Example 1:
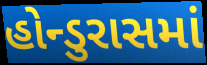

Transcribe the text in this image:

હોન્ડુરાસમાં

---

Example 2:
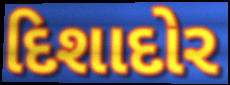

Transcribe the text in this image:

દિશાદોર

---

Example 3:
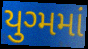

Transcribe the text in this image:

યુગ્મમાં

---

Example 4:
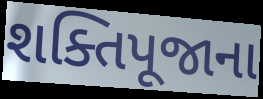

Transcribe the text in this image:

શક્તિપૂજાના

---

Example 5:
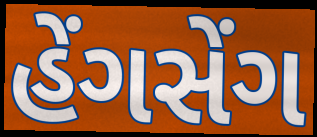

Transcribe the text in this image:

હેંગસેંગ